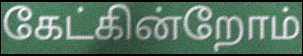
கேட்கின்றோம்